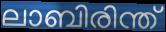
ലാബിരിന്ത്